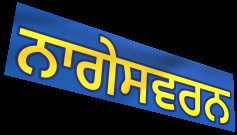
ਨਾਗੇਸਵਰਨ